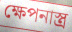
ক্ষেপনাস্ত্র